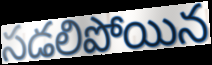
సడలిపోయిన